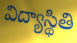
విద్యాస్థితి